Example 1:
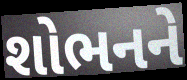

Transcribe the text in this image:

શોભનને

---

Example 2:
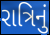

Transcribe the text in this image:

રાત્રિનું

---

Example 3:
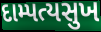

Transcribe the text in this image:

દામ્પત્યસુખ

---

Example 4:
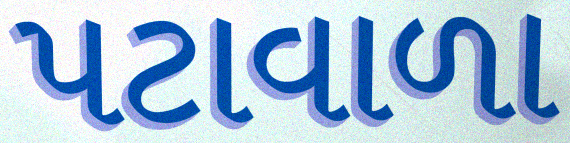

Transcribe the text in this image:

પટાવાળા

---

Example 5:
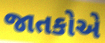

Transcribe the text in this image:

જાતકોએ